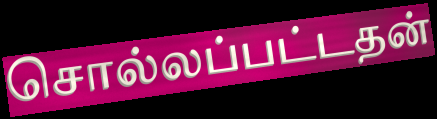
சொல்லப்பட்டதன்